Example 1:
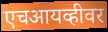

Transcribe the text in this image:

एचआयव्हीवर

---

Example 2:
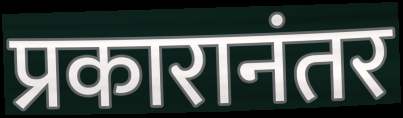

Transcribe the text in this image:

प्रकारानंतर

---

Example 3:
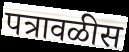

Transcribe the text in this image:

पत्रावळीस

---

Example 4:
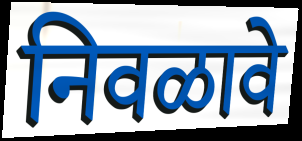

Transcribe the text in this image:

निवळावे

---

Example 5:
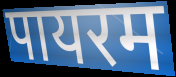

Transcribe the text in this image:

पायरम